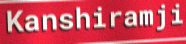
Kanshiramji